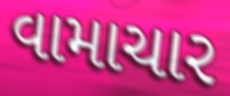
વામાચાર